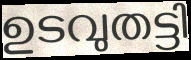
ഉടവുതട്ടി